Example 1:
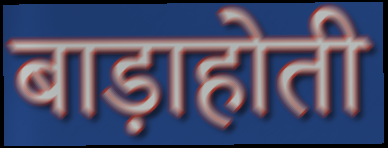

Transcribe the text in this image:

बाड़ाहोती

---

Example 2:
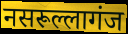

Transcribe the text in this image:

नसरूल्लागंज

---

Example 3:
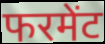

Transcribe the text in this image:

फरमेंट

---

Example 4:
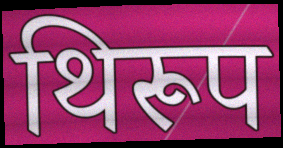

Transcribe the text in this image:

थिरूप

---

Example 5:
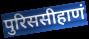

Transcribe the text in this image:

पुरिससीहाणं